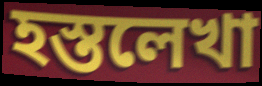
হস্তলেখা